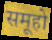
समूहो